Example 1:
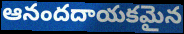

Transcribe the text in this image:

ఆనందదాయకమైన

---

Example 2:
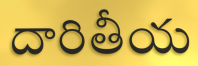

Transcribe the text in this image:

దారితీయ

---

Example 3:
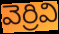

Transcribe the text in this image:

వెర్రివి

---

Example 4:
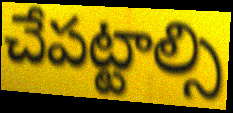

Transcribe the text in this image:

చేపట్టాల్సి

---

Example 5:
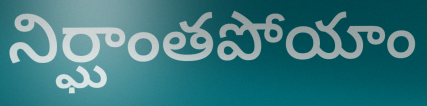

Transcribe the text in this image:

నిర్ఘాంతపోయాం